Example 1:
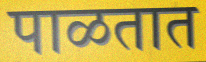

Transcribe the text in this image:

पाळतात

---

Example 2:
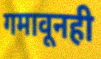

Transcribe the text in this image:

गमावूनही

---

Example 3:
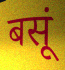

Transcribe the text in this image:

बसूं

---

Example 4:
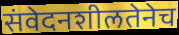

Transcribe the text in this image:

संवेदनशीलतेनेच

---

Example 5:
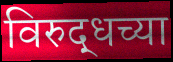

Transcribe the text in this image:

विरुद्धच्या